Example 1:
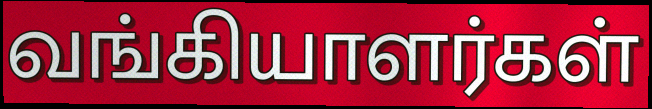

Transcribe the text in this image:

வங்கியாளர்கள்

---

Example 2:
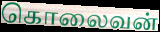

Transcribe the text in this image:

கொலைவன்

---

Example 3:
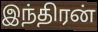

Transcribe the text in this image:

இந்திரன்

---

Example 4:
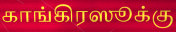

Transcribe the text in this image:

காங்கிரஸூக்கு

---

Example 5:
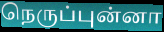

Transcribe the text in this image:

நெருப்புன்னா